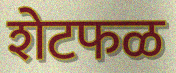
शेटफळ